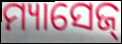
ମ୍ୟାସେଜ୍